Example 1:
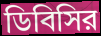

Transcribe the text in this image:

ডিবিসির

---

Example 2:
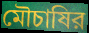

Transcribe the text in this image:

মৌচাষির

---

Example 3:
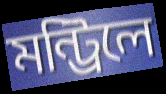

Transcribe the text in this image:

মন্ট্রিলে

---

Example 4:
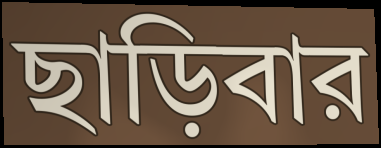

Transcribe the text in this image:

ছাড়িবার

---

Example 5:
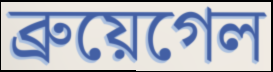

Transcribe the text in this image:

ব্রুয়েগেল